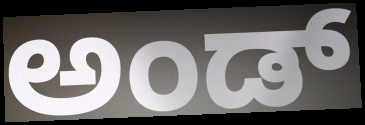
ಅಂಡ್